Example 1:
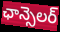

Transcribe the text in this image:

ఛాన్సెలర్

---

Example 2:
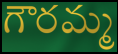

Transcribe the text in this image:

గౌరమ్మ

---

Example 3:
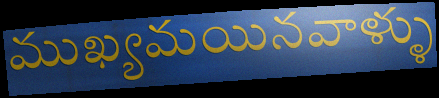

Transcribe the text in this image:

ముఖ్యమయినవాళ్ళు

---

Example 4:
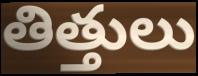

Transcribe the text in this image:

తిత్తులు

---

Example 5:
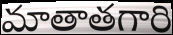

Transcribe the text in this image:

మాతాతగారి